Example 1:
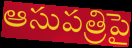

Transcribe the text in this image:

ఆసుపత్రిపై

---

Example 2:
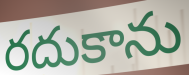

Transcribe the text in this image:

రదుకాను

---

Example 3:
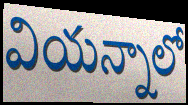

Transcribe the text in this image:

వియన్నాలో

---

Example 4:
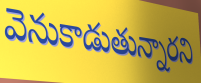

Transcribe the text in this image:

వెనుకాడుతున్నారని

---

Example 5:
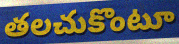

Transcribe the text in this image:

తలచుకొంటూ